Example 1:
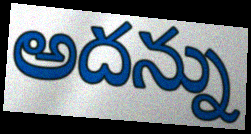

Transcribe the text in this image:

అదన్ను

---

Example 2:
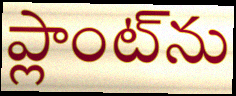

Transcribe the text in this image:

ప్లాంట్‌ను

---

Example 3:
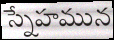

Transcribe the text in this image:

స్నేహమున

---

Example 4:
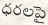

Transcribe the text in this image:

ధరలపై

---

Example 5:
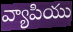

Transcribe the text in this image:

వ్యాపియు